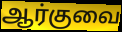
ஆர்குவை